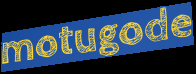
motugode